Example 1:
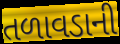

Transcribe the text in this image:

તળાવડાની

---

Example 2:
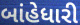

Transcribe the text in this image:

બાંહેધારી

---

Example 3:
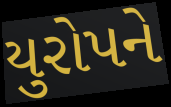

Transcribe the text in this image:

યુરોપને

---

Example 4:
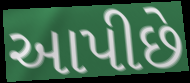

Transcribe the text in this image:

આપીછે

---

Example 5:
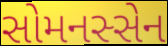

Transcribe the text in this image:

સોમનસ્સેન